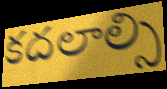
కదలాల్సి